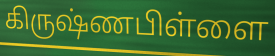
கிருஷ்ணபிள்ளை